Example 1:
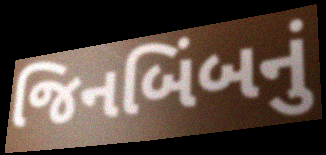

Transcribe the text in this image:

જિનબિંબનું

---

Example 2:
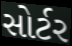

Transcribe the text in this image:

સોર્ટર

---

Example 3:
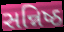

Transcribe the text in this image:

સન્નિષ્ઠ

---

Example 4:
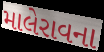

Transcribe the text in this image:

માલેરાવના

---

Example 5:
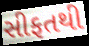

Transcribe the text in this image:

સીફતથી